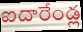
ఐదారేండ్ల